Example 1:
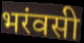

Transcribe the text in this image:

भरंवसी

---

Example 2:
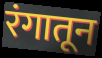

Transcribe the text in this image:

रंगातून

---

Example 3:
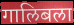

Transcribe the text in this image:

गालिबला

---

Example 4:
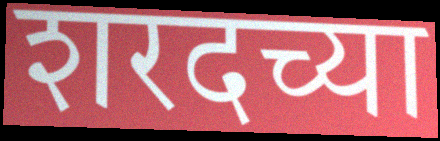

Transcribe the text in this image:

शरदच्या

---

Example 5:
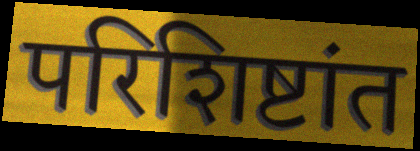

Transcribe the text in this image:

परिशिष्टांत